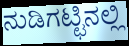
ನುಡಿಗಟ್ಟಿನಲ್ಲಿ